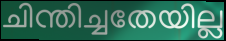
ചിന്തിച്ചതേയില്ല